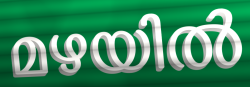
മഴയിൽ